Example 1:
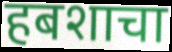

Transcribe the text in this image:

हबशाचा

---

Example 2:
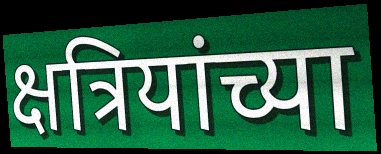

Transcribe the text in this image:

क्षत्रियांच्या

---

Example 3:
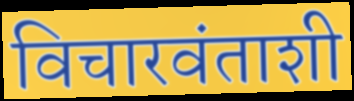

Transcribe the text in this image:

विचारवंताशी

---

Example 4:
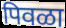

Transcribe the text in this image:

पिवळा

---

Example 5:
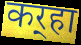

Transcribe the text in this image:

कर्हा